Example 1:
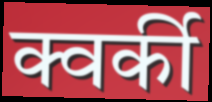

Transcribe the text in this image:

क्वर्की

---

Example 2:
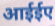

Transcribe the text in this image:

आईईए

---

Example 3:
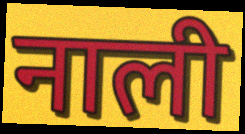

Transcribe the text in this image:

नाली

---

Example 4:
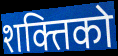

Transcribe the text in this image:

शक्तिको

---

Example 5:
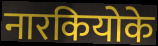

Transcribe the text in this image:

नारकियोके